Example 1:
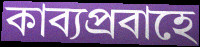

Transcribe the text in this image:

কাব্যপ্রবাহে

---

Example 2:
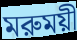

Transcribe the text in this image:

মরুময়ী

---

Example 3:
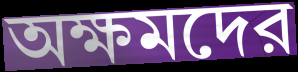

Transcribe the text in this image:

অক্ষমদের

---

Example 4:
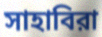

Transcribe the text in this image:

সাহাবিরা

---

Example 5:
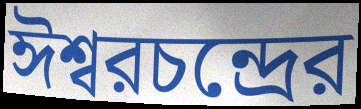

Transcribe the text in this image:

ঈশ্বরচন্দ্রের